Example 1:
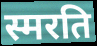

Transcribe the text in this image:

स्मरति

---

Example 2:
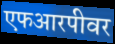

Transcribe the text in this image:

एफआरपीवर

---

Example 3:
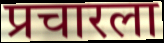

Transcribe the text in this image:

प्रचारला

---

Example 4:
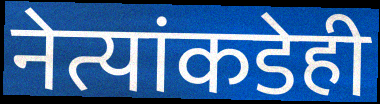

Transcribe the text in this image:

नेत्यांकडेही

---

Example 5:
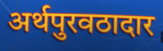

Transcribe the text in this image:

अर्थपुरवठादार